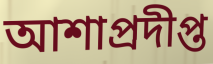
আশাপ্রদীপ্ত